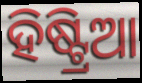
ହିଷ୍ଟ୍ରିଆ